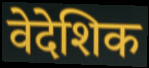
वेदेशिक